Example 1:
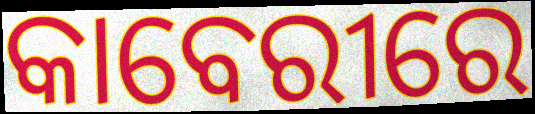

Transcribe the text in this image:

କାବେରୀରେ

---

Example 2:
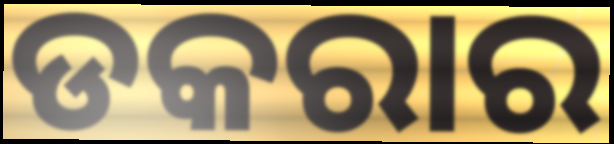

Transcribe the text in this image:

ଡକରାର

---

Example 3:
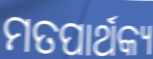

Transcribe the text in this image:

ମତପାର୍ଥକ୍ୟ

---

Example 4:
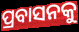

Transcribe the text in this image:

ପ୍ରବାସନକୁ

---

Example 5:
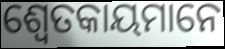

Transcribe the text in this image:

ଶ୍ୱେତକାୟମାନେ